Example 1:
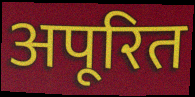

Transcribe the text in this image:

अपूरित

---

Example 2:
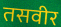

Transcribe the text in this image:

तसवीर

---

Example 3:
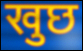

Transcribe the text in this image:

खुछ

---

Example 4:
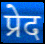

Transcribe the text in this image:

प्रेद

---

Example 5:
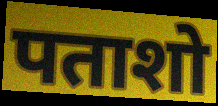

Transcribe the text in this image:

पताशो